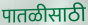
पातळीसाठी